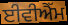
ਈਵੀਐੱਮ